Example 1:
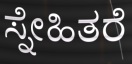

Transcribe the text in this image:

ಸ್ನೇಹಿತರೆ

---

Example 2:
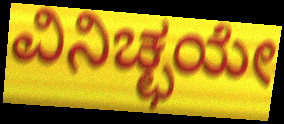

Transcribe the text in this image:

ವಿನಿಚ್ಛಯೇ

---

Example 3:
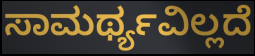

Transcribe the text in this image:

ಸಾಮರ್ಥ್ಯವಿಲ್ಲದೆ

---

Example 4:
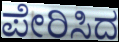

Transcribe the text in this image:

ಪೇರಿಸಿದ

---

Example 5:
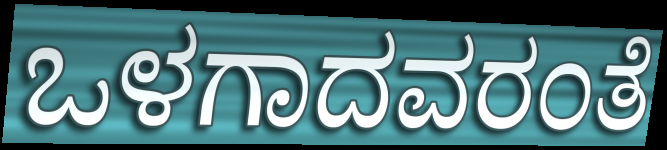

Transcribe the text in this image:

ಒಳಗಾದವರಂತೆ